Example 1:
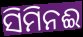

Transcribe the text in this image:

ସିମିନଈ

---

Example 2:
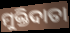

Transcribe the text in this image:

ମୁକ୍ତିଦାତା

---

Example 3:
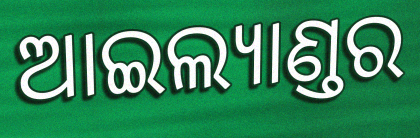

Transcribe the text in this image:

ଆଇଲ୍ୟାଣ୍ଡର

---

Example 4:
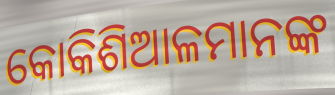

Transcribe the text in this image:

କୋକିଶିଆଳମାନଙ୍କ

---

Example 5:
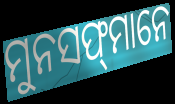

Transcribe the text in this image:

ମୁନସଫ୍‍ମାନେ